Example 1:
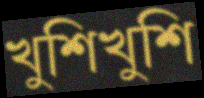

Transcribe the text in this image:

খুশিখুশি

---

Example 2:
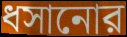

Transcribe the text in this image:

ধসানোর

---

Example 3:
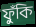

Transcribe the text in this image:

ফুঁকি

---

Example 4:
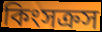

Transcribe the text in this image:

কিংসক্রস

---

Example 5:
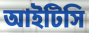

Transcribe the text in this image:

আইটিসি